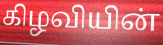
கிழவியின்